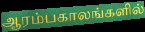
ஆரம்பகாலங்களில்